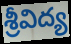
శ్రీవిద్య